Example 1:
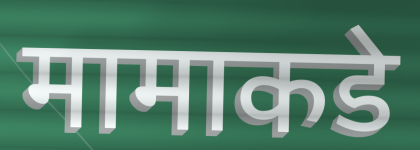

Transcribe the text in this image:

मामाकडे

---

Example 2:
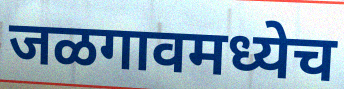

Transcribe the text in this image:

जळगावमध्येच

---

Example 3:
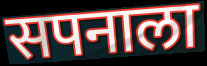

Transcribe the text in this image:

सपनाला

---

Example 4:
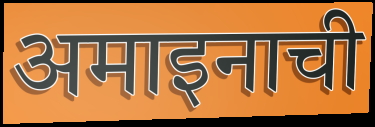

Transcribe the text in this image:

अमाइनाची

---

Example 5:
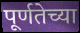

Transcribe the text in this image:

पूर्णतेच्या